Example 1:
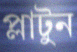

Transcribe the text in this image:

প্লাটুন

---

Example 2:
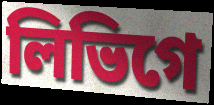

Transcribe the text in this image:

লিভিগে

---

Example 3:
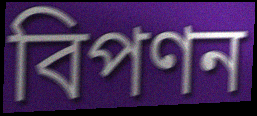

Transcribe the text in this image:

বিপণন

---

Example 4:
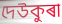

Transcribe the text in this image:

দেউকুৰা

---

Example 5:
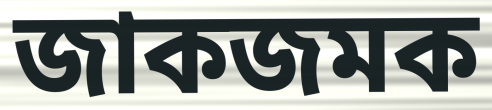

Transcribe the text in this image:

জাকজমক